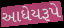
આધેયરૂપે